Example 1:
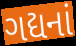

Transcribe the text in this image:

ગદ્યનાં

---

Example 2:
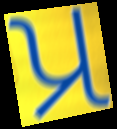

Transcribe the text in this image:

પ્ર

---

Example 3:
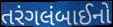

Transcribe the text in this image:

તરંગલંબાઈનો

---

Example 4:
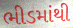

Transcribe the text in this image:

ભીડમાંથી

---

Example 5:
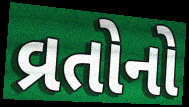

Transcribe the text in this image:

વ્રતોનો